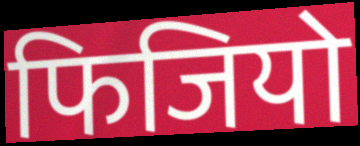
फिजियो